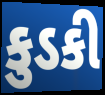
કુડકી